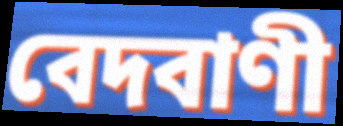
বেদবাণী